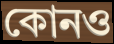
কোনও